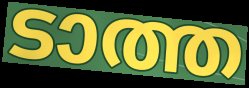
ടാത്ത